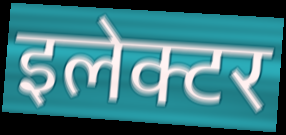
इलेक्टर